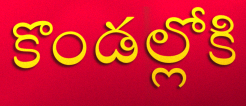
కొండల్లోకి